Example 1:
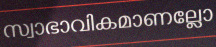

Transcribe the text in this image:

സ്വാഭാവികമാണല്ലോ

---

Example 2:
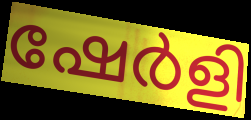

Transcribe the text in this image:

ഷേർളി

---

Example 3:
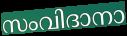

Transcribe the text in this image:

സംവിദാനാ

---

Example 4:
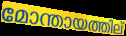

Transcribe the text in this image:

മോന്തായത്തില്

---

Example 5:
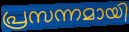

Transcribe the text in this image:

പ്രസന്നമായി